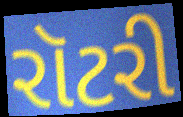
રૉટરી